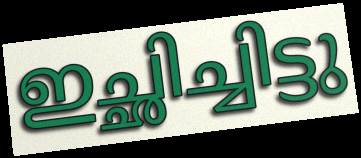
ഇച്ഛിച്ചിട്ടു